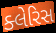
ક્લેરિસ